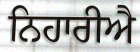
ਨਿਹਾਰੀਐ